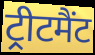
ट्रीटमैंट